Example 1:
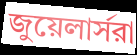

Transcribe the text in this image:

জুয়েলার্সরা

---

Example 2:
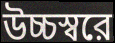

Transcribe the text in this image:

উচ্চস্বরে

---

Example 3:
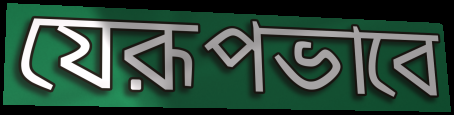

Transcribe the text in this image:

যেরূপভাবে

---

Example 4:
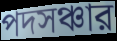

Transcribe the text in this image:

পদসঞ্চার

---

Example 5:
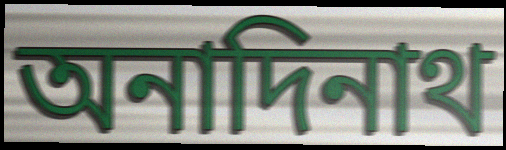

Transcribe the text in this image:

অনাদিনাথ